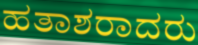
ಹತಾಶರಾದರು